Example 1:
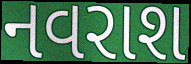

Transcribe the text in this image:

નવરાશ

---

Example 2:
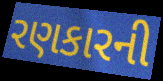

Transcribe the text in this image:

રણકારની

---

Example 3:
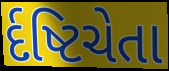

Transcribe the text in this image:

ર્દષ્ટિચેતા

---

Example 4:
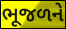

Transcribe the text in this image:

ભૂજળને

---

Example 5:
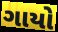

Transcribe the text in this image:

ગાયો